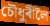
চৌধুৰীলৈ